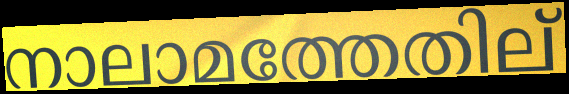
നാലാമത്തേതില്